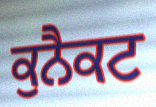
ਕੁਨੈਕਟ